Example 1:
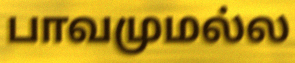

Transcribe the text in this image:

பாவமுமல்ல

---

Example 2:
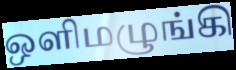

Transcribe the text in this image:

ஒளிமழுங்கி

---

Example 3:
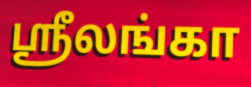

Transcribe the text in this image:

ஶ்ரீலங்கா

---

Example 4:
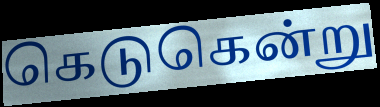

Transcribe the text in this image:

கெடுகென்று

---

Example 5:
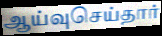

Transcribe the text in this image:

ஆய்வுசெய்தார்